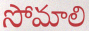
సోమాలి